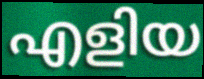
എളിയ